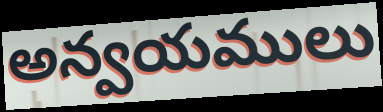
అన్వయములు